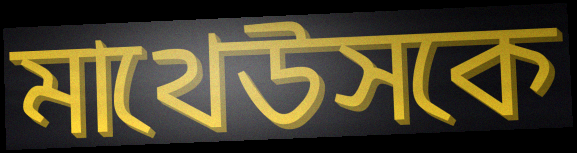
মাথেউসকে